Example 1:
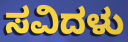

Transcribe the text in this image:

ಸವಿದಳು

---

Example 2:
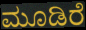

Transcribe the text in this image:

ಮೂಡಿರೆ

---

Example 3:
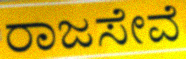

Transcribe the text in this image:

ರಾಜಸೇವೆ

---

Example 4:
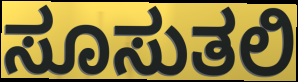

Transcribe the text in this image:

ಸೂಸುತಲಿ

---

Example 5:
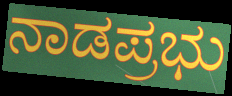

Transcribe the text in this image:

ನಾಡಪ್ರಭು